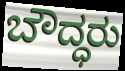
ಬೌದ್ಧರು